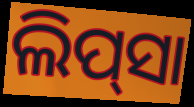
ଲିପ୍‌ସା